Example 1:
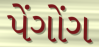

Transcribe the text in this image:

પેંગોંગ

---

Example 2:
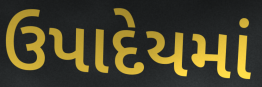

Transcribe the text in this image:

ઉપાદેયમાં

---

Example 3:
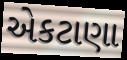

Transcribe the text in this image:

એકટાણા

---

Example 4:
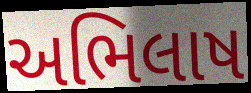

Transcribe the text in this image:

અભિલાષ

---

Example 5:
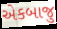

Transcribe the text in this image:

એકબાજુ